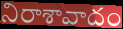
నిరాశావాదం